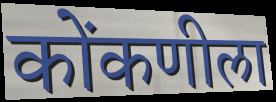
कोंकणीला